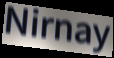
Nirnay